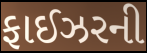
ફાઈઝરની